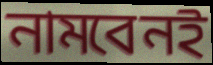
নামবেনই